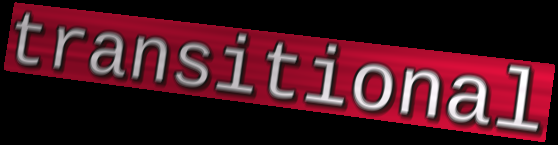
transitional